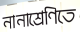
নানাশ্রেণিতে